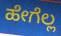
ಹೇಗೆಲ್ಲ